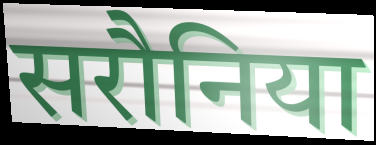
सरौनिया